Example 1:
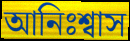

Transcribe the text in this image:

আনিঃশ্বাস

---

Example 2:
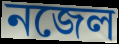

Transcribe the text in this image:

নজেল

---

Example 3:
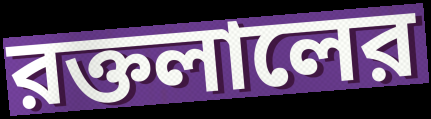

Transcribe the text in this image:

রক্তলালের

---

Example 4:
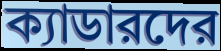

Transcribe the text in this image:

ক্যাডারদের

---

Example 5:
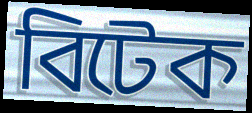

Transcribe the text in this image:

বিটেক